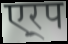
एर्प